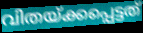
വിതയ്ക്കപ്പെട്ടത്